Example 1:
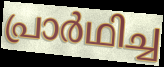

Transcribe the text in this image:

പ്രാർഥിച്ച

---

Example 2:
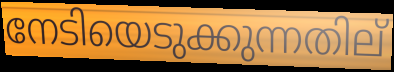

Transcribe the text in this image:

നേടിയെടുക്കുന്നതില്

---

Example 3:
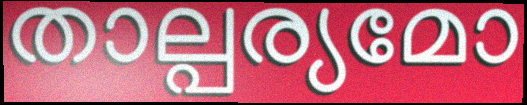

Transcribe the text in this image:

താല്പര്യമോ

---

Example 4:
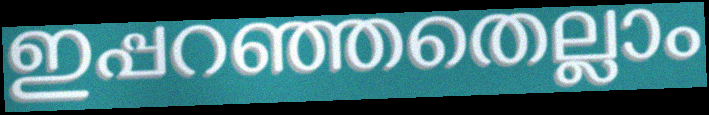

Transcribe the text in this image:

ഇപ്പറഞ്ഞതെല്ലാം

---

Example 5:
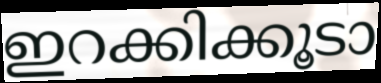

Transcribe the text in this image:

ഇറക്കിക്കൂടാ